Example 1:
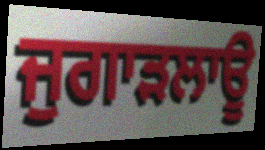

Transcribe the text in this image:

ਜੁਗਾੜਲਾਊ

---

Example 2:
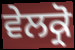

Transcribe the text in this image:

ਵੇਲਕ੍ਰੋ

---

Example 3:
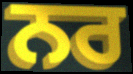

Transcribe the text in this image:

ਨਰ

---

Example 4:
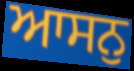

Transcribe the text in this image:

ਆਸਨੁ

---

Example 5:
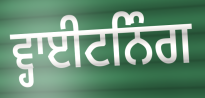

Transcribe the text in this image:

ਵ੍ਹਾਈਟਨਿੰਗ